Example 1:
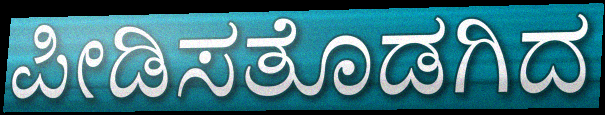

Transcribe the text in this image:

ಪೀಡಿಸತೊಡಗಿದ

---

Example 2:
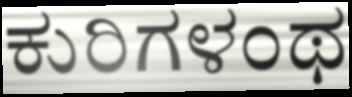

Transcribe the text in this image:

ಕುರಿಗಳಂಥ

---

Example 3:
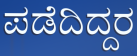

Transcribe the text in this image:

ಪಡೆದಿದ್ದರ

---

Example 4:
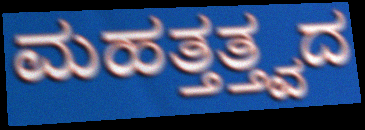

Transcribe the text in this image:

ಮಹತ್ತತ್ತ್ವದ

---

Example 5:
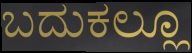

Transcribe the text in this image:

ಬದುಕಲ್ಲೂ